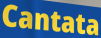
Cantata